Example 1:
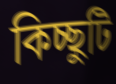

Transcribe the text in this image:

কিচ্ছুটি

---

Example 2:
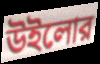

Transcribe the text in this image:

উইলোর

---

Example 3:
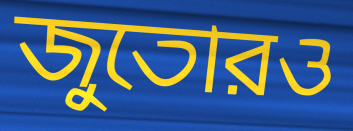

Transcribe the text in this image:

জুতোরও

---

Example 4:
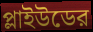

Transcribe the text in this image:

প্লাইউডের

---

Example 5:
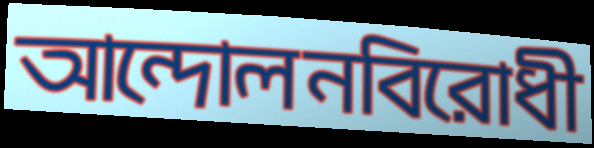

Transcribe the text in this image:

আন্দোলনবিরোধী